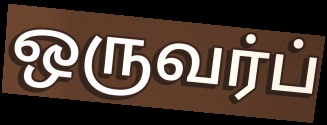
ஒருவர்ப்